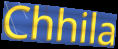
Chhila